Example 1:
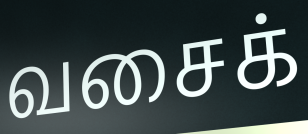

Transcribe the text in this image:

வசைக்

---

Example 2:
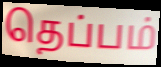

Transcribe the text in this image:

தெப்பம்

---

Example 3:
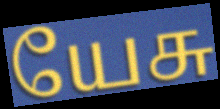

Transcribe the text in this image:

யேசு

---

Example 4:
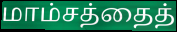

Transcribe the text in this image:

மாம்சத்தைத்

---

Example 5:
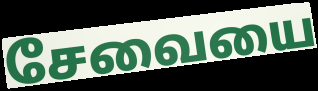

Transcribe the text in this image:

சேவையை